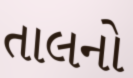
તાલનો